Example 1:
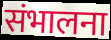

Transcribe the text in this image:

संभालना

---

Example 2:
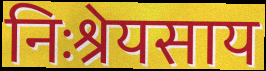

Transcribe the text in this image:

निःश्रेयसाय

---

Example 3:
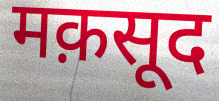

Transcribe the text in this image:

मक़सूद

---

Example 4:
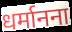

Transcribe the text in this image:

धर्मानना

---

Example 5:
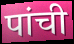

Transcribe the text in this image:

पांची